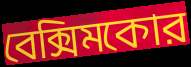
বেক্সিমকোর